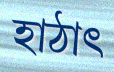
হাঠাৎ